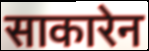
साकारेन